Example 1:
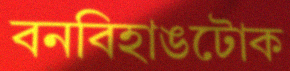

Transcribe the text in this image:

বনবিহাঙটোক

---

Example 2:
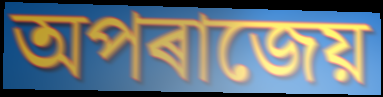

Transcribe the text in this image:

অপৰাজেয়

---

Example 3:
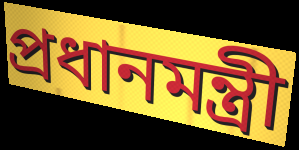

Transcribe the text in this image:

প্ৰধানমন্ত্ৰী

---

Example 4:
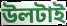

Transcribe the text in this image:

উলটাই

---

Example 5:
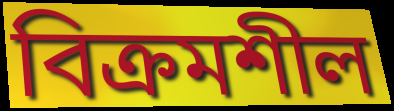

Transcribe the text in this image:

বিক্ৰমশীল